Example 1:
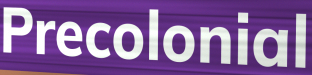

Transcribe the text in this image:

Precolonial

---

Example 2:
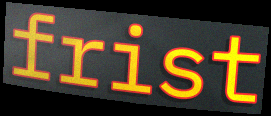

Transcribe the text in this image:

frist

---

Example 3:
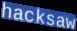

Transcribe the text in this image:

hacksaw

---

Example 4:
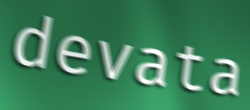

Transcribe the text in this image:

devata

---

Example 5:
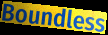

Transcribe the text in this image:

Boundless